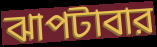
ঝাপটাবার